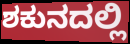
ಶಕುನದಲ್ಲಿ